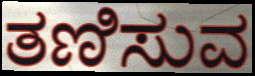
ತಣಿಸುವ